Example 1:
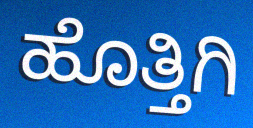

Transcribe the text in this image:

ಹೊತ್ತಿಗಿ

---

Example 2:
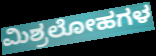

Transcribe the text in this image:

ಮಿಶ್ರಲೋಹಗಳ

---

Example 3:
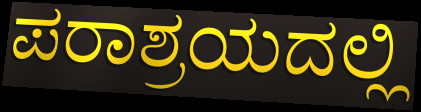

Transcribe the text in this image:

ಪರಾಶ್ರಯದಲ್ಲಿ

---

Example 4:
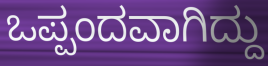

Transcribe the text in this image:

ಒಪ್ಪಂದವಾಗಿದ್ದು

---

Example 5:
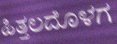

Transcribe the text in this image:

ಹಿತ್ತಲದೊಳಗ